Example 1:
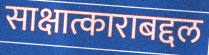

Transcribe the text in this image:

साक्षात्काराबद्दल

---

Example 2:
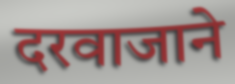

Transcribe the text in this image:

दरवाजाने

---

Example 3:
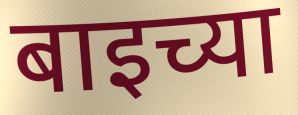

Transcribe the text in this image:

बाइच्या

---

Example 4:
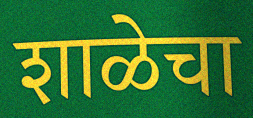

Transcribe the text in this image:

शाळेचा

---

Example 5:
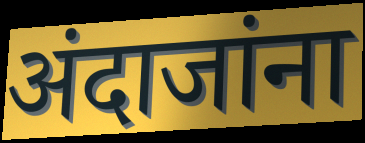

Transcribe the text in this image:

अंदाजांना